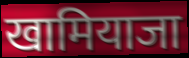
खामियाजा